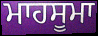
ਮਾਹਸੂਮਾ